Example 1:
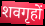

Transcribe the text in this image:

शवगृहों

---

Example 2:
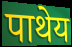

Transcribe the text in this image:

पाथेय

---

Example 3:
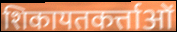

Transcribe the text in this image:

शिकायतकर्त्ताओं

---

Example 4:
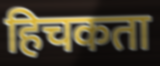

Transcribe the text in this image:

हिचकता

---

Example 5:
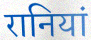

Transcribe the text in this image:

रानियां